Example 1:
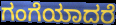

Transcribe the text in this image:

ಗಂಗೆಯಾದರೆ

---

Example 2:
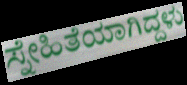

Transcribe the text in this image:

ಸ್ನೇಹಿತೆಯಾಗಿದ್ದಳು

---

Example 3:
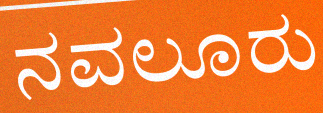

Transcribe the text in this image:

ನವಲೂರು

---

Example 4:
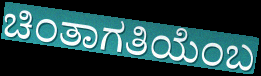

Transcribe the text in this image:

ಚಿಂತಾಗತಿಯೆಂಬ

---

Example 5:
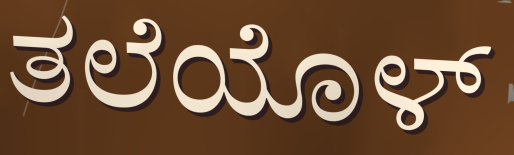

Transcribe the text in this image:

ತಲೆಯೊಳ್